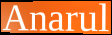
Anarul